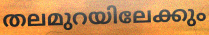
തലമുറയിലേക്കും